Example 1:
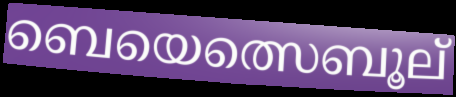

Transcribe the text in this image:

ബെയെത്സെബൂല്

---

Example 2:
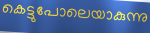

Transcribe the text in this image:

കെട്ടുപോലെയാകുന്നു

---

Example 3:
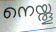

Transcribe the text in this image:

നെയ്തൂ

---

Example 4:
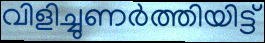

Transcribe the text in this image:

വിളിച്ചുണർത്തിയിട്ട്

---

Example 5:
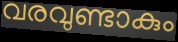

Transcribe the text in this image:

വരവുണ്ടാകും